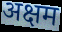
अक्षम